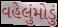
વહેલુંમોડું